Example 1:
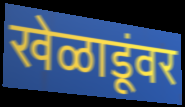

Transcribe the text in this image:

खेळाडूंवर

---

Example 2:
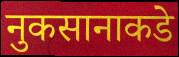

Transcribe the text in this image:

नुकसानाकडे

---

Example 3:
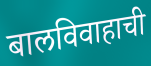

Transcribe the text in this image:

बालविवाहाची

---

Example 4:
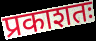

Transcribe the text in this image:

प्रकाशतः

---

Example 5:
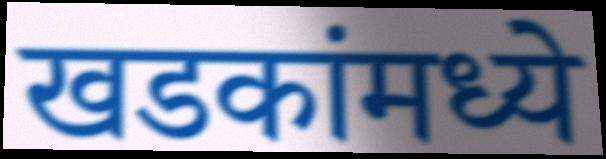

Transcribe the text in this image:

खडकांमध्ये